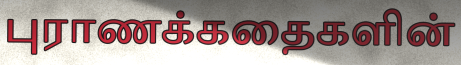
புராணக்கதைகளின்